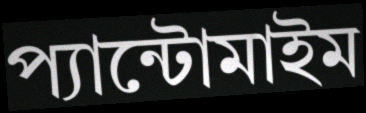
প্যান্টোমাইম